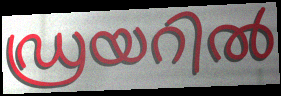
ഡ്രയറിൽ